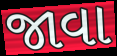
જાવા